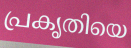
പ്രകൃതിയെ